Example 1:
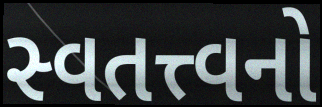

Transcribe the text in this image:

સ્વતત્ત્વનો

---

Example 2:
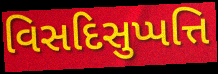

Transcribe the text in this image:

વિસદિસુપ્પત્તિ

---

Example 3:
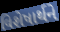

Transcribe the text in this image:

વિશેષાર્થને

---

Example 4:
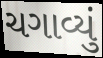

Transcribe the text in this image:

ચગાવ્યું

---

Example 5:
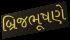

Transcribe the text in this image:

બ્રિજભૂષણે